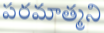
పరమాత్మని